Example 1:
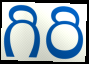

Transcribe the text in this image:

గిరి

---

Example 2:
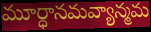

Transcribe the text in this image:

మూర్ధానమవ్యాన్మమ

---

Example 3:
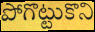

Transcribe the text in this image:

పోగొట్టుకొని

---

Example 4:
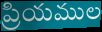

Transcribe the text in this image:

ప్రియముల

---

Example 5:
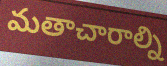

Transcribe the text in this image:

మతాచారాల్ని